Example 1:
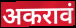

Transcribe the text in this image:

अकरावं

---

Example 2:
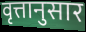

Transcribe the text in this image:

वृत्तानुसार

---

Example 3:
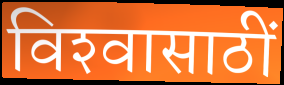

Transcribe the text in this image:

विश्वासाठीं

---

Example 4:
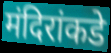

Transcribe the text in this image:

मंदिरांकडे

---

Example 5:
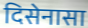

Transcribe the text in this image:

दिसेनासा